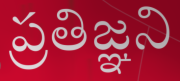
ప్రతిజ్ఞని